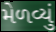
મેળવ્યું